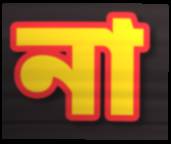
না